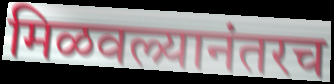
मिळवल्यानंतरच